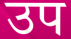
उप